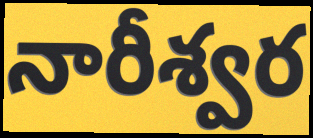
నారీశ్వర